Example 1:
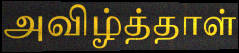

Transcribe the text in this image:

அவிழ்த்தாள்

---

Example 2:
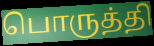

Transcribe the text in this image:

பொருத்தி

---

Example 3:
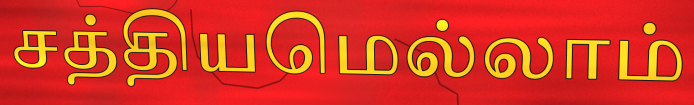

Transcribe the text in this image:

சத்தியமெல்லாம்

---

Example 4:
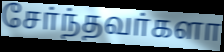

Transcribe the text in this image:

சேர்ந்தவர்களா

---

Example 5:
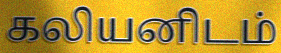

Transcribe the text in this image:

கலியனிடம்